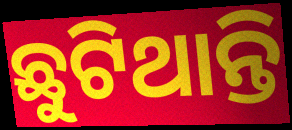
ଛୁଟିଥାନ୍ତି